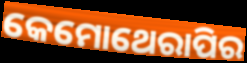
କେମୋଥେରାପିର